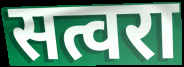
सत्वरा